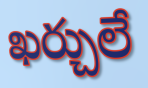
ఖర్చులే